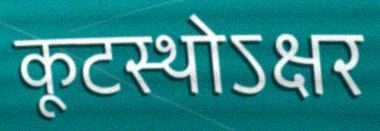
कूटस्थोऽक्षर